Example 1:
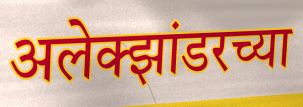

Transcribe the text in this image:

अलेक्झांडरच्या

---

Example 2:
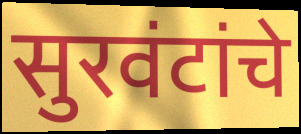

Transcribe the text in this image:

सुरवंटांचे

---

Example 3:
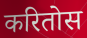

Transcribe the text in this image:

करितोस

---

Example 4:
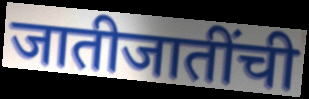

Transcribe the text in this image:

जातीजातींची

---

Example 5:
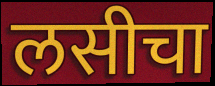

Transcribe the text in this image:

लसीचा